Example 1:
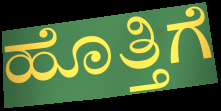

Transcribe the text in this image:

ಹೊತ್ತಿಗೆ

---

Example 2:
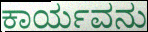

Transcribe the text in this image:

ಕಾರ್ಯವನು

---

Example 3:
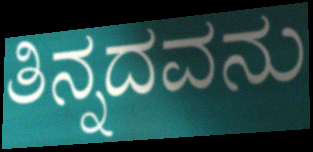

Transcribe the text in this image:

ತಿನ್ನದವನು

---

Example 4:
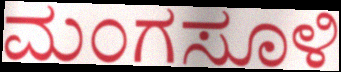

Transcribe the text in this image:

ಮಂಗಸೂಳಿ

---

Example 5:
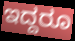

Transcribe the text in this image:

ಇದ್ದರೂ